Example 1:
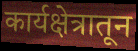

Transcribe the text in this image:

कार्यक्षेत्रातून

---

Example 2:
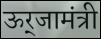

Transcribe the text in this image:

ऊर्जामंत्री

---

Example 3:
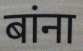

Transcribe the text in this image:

बांना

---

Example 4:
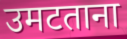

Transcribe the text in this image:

उमटताना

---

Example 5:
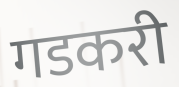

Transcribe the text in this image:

गडकरी